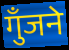
गुँजने